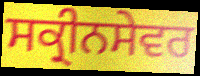
ਸਕ੍ਰੀਨਸੇਵਰ